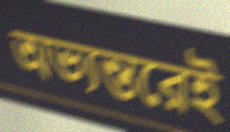
অভ্যন্তরেই